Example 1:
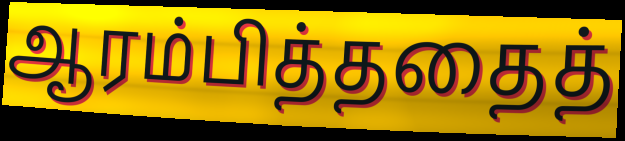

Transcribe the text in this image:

ஆரம்பித்ததைத்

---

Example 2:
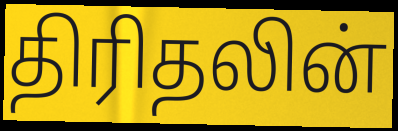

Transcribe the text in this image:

திரிதலின்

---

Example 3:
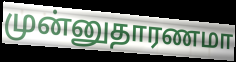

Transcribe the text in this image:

முன்னுதாரணமா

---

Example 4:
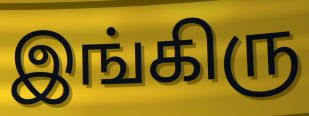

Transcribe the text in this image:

இங்கிரு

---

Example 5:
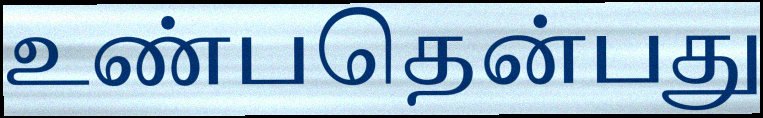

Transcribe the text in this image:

உண்பதென்பது